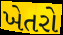
ખેતરો